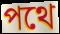
পথে